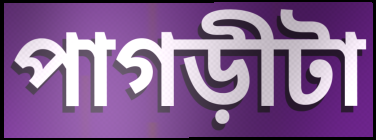
পাগড়ীটা